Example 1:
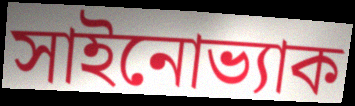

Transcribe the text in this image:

সাইনোভ্যাক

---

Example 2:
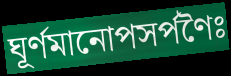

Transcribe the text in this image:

ঘূর্ণমানোপসর্পণৈঃ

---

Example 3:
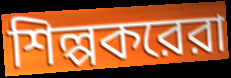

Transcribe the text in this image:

শিল্পকরেরা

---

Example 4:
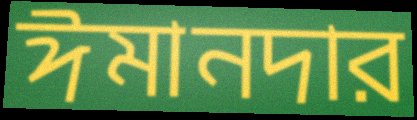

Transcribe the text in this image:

ঈমানদার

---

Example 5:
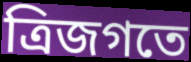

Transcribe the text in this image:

ত্রিজগতে